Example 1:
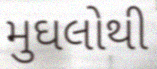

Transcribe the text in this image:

મુઘલોથી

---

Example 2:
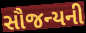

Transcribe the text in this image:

સૌજન્યની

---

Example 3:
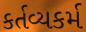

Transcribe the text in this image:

કર્તવ્યકર્મ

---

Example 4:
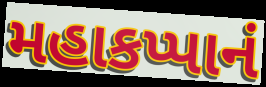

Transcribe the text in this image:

મહાકપ્પાનં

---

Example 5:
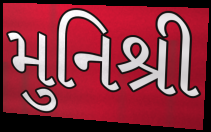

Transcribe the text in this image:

મુનિશ્રી